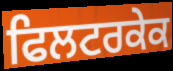
ਫਿਲਟਰਕੇਕ